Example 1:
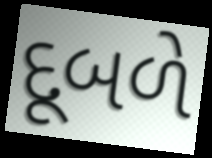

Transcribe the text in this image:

દૂબળે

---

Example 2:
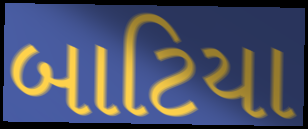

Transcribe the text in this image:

બાટિયા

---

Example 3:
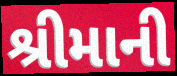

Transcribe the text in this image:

શ્રીમાની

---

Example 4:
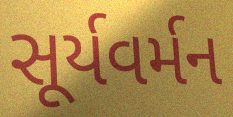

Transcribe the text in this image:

સૂર્યવર્મન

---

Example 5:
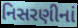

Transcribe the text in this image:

નિસરણીનાં